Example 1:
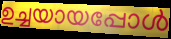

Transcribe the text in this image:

ഉച്ചയായപ്പോൾ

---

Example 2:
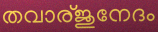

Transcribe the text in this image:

തവാര്ജുനേദം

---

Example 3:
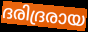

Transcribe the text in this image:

ദരിദ്രരായ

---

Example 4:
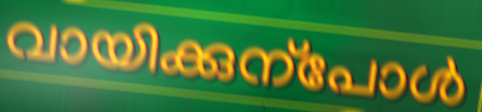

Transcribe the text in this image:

വായിക്കുന്പോൾ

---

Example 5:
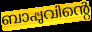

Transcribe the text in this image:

ബാപ്പുവിന്റെ